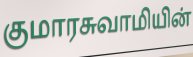
குமாரசுவாமியின்